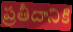
ప్రతీదానికి